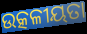
ଉତ୍କଳୀୟତା